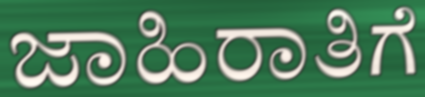
ಜಾಹಿರಾತಿಗೆ